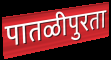
पातळीपुरता